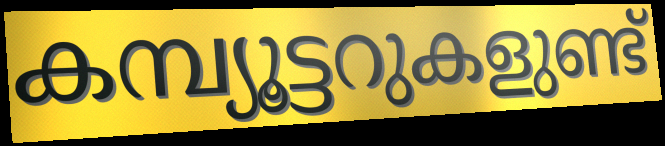
കമ്പ്യൂട്ടറുകളുണ്ട്